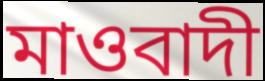
মাওবাদী